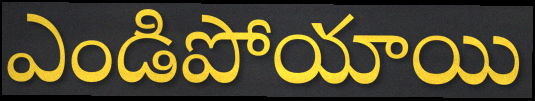
ఎండిపోయాయి